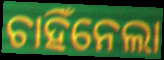
ଚାହିଁନେଲା